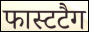
फास्टटैग